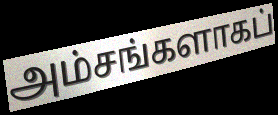
அம்சங்களாகப்